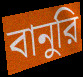
বানুরি